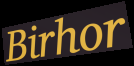
Birhor